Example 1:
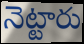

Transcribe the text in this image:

నెట్టారు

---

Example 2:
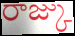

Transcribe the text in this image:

రాజ్కు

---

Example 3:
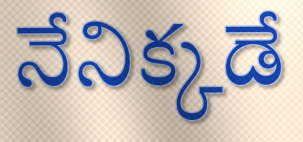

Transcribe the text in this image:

నేనిక్కడే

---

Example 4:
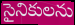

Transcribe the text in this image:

సైనికులను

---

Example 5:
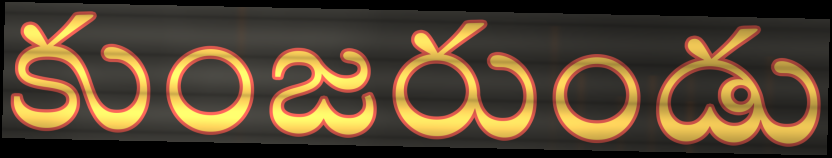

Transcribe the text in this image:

కుంజరుండు